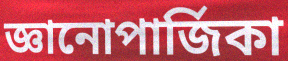
জ্ঞানোপার্জিকা